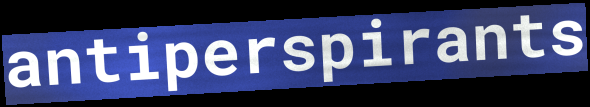
antiperspirants